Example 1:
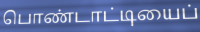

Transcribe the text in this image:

பொண்டாட்டியைப்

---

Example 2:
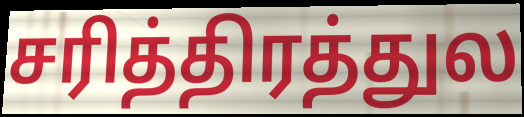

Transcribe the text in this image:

சரித்திரத்துல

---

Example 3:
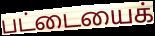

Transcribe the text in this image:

பட்டையைக்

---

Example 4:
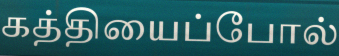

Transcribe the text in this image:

கத்தியைப்போல்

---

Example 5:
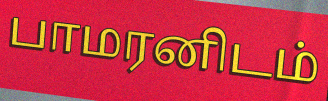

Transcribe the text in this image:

பாமரனிடம்